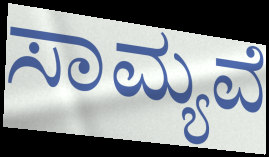
ಸಾಮ್ಯವೆ